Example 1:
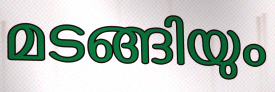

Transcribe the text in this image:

മടങ്ങിയും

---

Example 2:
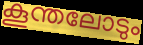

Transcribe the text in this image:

കൂന്തലോടും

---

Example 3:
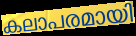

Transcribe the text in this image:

കലാപരമായി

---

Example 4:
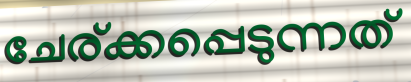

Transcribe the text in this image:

ചേര്ക്കപ്പെടുന്നത്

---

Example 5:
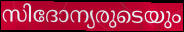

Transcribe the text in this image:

സിദോന്യരുടെയും